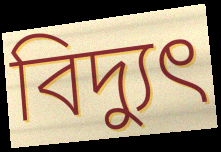
বিদ্যুৎ